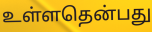
உள்ளதென்பது